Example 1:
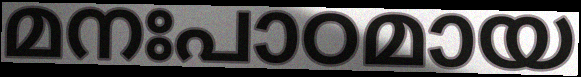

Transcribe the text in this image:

മനഃപാഠമായ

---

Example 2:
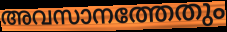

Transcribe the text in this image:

അവസാനത്തേതും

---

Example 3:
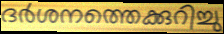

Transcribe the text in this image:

ദർശനത്തെക്കുറിച്ചു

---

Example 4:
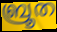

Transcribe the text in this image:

ബ്രൂത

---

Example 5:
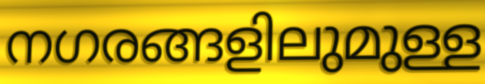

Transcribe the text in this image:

നഗരങ്ങളിലുമുള്ള